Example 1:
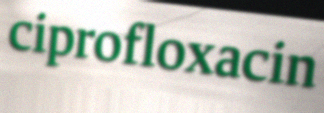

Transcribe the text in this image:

ciprofloxacin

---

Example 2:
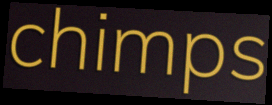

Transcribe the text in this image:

chimps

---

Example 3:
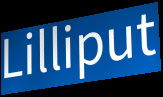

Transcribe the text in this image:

Lilliput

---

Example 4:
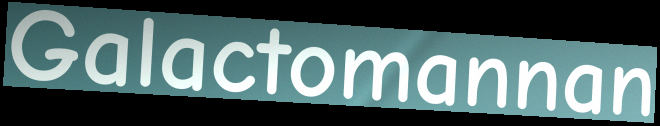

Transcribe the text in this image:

Galactomannan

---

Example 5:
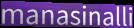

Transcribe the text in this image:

manasinalli